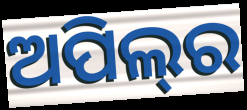
ଅପିଲ୍‌ର